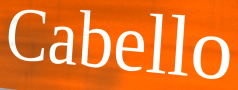
Cabello